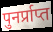
पुनर्प्राप्त